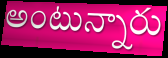
అంటున్నారు